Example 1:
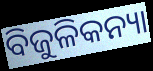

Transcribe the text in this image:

ବିଜୁଳିକନ୍ୟା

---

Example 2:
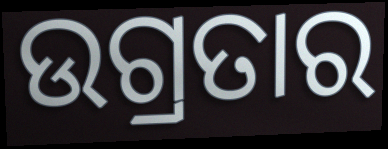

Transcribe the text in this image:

ଉଗ୍ରତାର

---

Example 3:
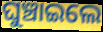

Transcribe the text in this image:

ଘୁଞ୍ଚାଇଲେ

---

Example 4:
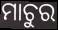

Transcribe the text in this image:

ମାଚୁର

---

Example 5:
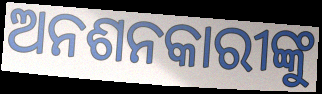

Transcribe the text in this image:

ଅନଶନକାରୀଙ୍କୁ